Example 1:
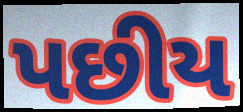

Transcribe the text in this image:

પછીય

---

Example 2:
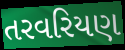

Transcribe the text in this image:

તરવરિયણ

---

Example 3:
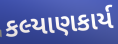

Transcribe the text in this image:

કલ્યાણકાર્ય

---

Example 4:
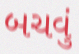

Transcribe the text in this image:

બચવું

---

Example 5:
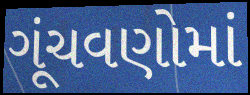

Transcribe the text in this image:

ગૂંચવણોમાં